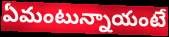
ఏమంటున్నాయంటే